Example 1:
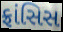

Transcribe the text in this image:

ફ્રાંસિસ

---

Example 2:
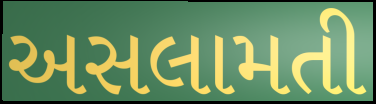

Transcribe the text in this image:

અસલામતી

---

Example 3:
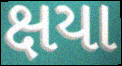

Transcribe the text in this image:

ક્ષયા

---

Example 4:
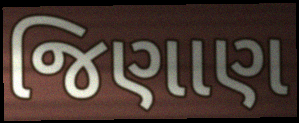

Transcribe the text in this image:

જિણાણ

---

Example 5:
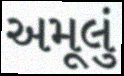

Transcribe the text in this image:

અમૂલું